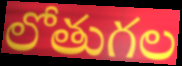
లోతుగల